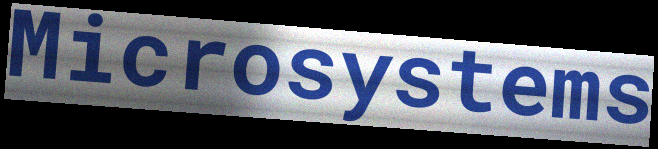
Microsystems